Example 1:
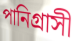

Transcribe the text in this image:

পানিগ্রাসী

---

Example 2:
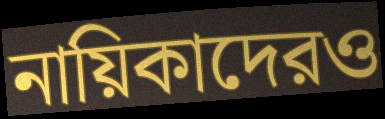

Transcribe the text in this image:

নায়িকাদেরও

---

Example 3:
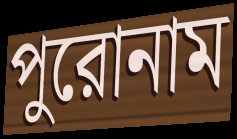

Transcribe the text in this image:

পুরোনাম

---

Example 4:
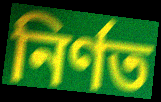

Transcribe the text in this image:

নির্ণত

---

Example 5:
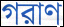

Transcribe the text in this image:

গরাণ